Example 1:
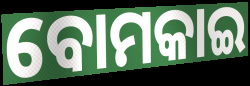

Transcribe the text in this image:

ବୋମକାଇ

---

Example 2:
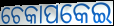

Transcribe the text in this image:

ଚେକାପକେଇ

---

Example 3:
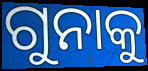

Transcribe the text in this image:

ଗୁନାକୁ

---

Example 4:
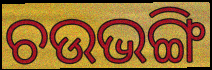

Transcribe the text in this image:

ଚଉଭଙ୍ଗି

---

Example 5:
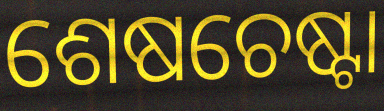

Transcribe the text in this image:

ଶେଷଚେଷ୍ଟା